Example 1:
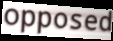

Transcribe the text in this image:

opposed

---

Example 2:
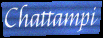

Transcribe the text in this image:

Chattampi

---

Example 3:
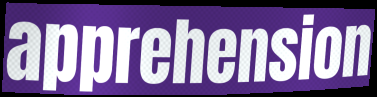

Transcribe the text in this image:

apprehension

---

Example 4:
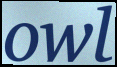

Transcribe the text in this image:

owl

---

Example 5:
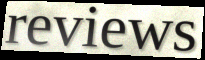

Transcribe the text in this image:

reviews